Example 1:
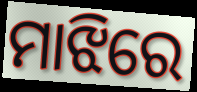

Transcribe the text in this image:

ମାଝିରେ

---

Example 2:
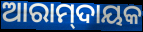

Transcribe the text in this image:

ଆରାମ୍‌ଦାୟକ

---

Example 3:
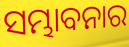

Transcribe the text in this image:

ସମ୍ଭାବନାର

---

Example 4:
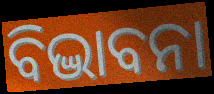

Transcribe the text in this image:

ବିଦ୍ଭାବନା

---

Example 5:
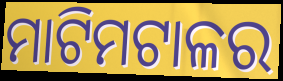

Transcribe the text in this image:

ମାଟିମଟାଳର